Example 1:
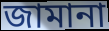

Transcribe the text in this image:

জামানা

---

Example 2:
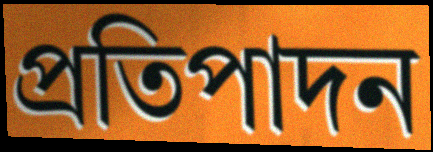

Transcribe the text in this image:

প্ৰতিপাদন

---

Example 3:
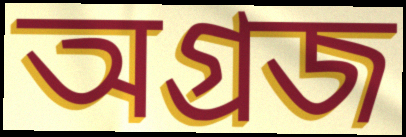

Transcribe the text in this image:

অগ্ৰজ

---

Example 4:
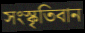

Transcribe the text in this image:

সংস্কৃতিবান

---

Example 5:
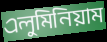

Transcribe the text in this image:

এলুমিনিয়াম